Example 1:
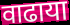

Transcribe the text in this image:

वाढाया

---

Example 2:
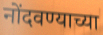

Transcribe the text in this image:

नोंदवण्याच्या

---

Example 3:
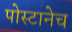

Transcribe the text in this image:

पोस्टानेच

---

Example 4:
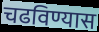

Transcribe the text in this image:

चढविण्यास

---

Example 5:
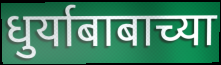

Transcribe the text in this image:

धुर्याबाबाच्या